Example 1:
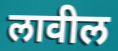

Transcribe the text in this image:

लावील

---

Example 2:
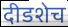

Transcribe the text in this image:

दीडशेच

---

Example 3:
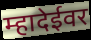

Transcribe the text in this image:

म्हादेईवर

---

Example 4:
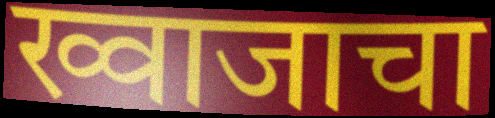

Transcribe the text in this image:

ख्वाजाचा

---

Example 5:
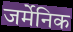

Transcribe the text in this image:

जर्मेनिक